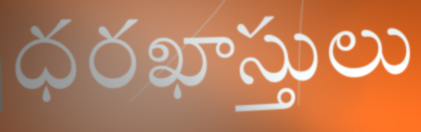
ధరఖాస్తులు